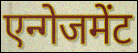
एन्गेजमेंट